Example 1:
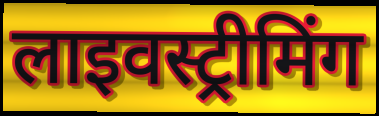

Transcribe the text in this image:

लाइवस्ट्रीमिंग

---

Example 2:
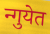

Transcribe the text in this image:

न्गुयेत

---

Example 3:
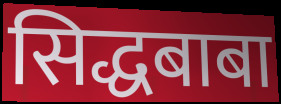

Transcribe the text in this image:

सिद्धबाबा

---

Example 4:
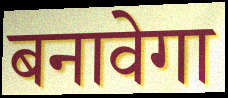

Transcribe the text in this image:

बनावेगा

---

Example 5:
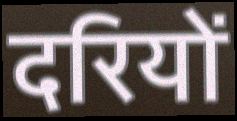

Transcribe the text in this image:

दरियों